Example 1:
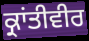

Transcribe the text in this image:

ਕ੍ਰਾਂਤੀਵੀਰ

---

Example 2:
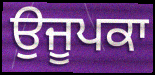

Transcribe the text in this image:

ਉਜੂਪਕਾ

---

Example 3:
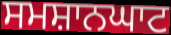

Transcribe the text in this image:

ਸਮਸ਼ਾਨਘਾਟ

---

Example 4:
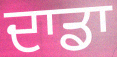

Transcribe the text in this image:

ਦਾਡਾ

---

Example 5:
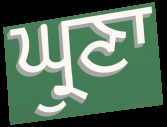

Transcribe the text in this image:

ਘ੍ਰੁਣਾ